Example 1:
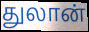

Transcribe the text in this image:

துலான்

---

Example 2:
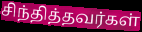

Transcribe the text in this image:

சிந்தித்தவர்கள்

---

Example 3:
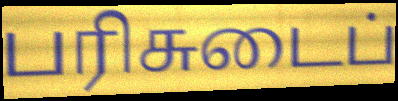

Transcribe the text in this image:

பரிசுடைப்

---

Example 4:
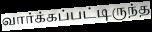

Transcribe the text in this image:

வார்க்கப்பட்டிருந்த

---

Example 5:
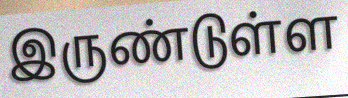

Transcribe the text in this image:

இருண்டுள்ள